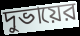
দুভায়ের